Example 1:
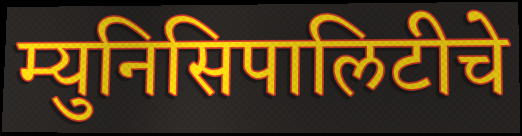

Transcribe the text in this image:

म्युनिसिपालिटीचे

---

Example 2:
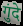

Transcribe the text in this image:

गुंदे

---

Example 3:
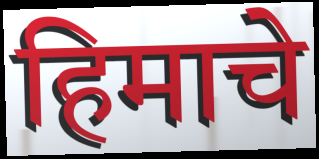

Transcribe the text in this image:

हिमाचे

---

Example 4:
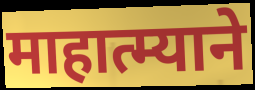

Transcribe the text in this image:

माहात्म्याने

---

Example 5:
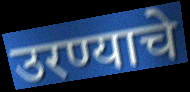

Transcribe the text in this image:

उरण्याचे